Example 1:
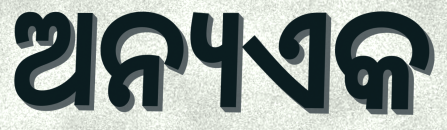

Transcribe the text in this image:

ଅନ୍ୟଏକ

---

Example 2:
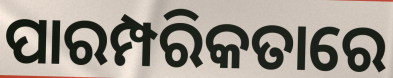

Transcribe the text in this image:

ପାରମ୍ପରିକତାରେ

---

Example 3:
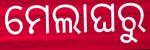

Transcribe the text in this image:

ମେଲାଘରୁ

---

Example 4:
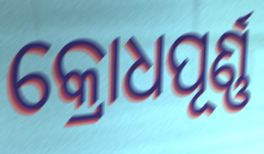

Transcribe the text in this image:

କ୍ରୋଧପୂର୍ଣ୍ଣ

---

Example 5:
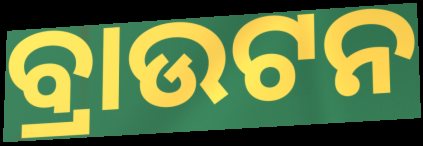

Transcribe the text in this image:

ବ୍ରାଉଟନ